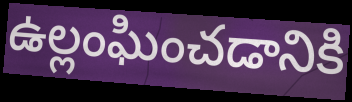
ఉల్లంఘించడానికి